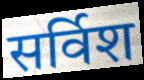
सर्विश